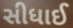
સીધાઈ